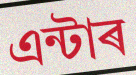
এন্টাৰ